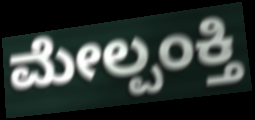
ಮೇಲ್ಪಂಕ್ತಿ